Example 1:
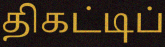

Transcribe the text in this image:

திகட்டிப்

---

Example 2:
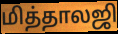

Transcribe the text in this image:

மித்தாலஜி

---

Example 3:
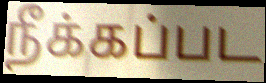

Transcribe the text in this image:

நீக்கப்பட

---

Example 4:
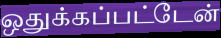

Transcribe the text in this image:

ஒதுக்கப்பட்டேன்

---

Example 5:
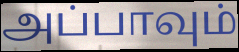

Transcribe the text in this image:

அப்பாவும்